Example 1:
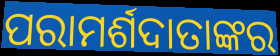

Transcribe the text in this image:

ପରାମର୍ଶଦାତାଙ୍କର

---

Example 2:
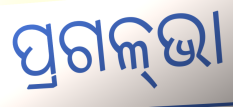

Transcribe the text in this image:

ପ୍ରଗଳ୍‌ଭା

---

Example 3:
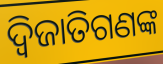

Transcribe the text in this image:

ଦ୍ୱିଜାତିଗଣଙ୍କ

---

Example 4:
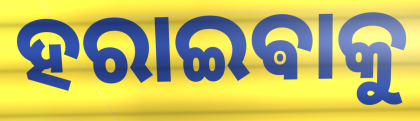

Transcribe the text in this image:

ହରାଇଵାକୁ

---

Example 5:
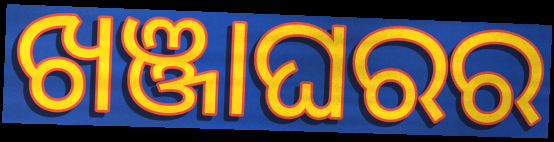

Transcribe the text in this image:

ଖଞ୍ଜାଘରର